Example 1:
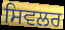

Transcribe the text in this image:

ਸਿਵਲਰ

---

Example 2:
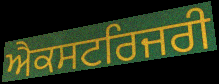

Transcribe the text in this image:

ਐਕਸਟਰਿਜਰੀ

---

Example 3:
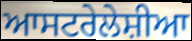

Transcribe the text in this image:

ਆਸਟਰੇਲੇਸ਼ੀਆ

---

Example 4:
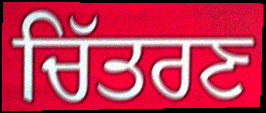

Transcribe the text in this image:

ਚਿੱਤਰਣ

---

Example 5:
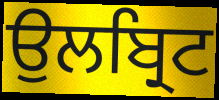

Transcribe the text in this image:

ਉਲਬ੍ਰਿਟ